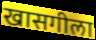
खासगीला